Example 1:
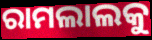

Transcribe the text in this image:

ରାମଲାଲକୁ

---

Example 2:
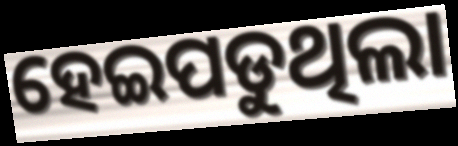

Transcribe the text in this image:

ହେଇପଡୁଥିଲା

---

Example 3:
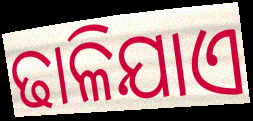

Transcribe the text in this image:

ଢାଳିଯାଏ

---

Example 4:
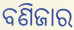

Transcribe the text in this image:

ବଣିଜାର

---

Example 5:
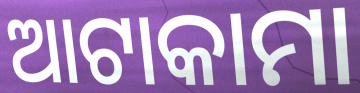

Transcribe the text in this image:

ଆଟାକାମା